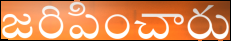
జరిపించారు